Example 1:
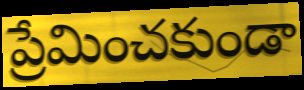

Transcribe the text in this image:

ప్రేమించకుండా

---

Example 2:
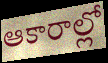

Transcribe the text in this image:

ఆకారాల్లో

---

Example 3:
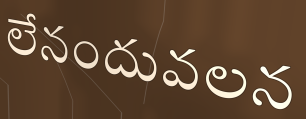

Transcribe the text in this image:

లేనందువలన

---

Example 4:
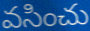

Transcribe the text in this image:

వసించు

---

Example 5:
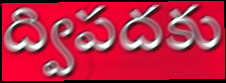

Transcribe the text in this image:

ద్విపదకు